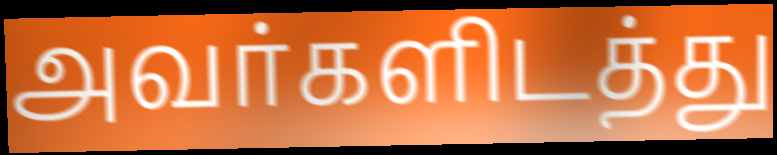
அவர்களிடத்து